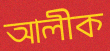
আলীক